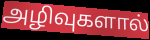
அழிவுகளால்